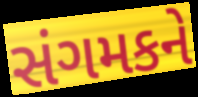
સંગમકને